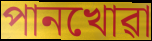
পানখোৱা